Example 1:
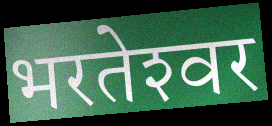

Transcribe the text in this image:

भरतेश्वर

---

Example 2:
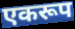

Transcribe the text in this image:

एकरूप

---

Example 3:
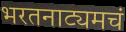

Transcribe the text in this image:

भरतनाट्यमचं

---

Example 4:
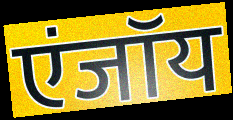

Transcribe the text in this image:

एंजॉय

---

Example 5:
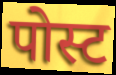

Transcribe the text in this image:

पोस्ट